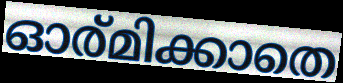
ഓര്മിക്കാതെ